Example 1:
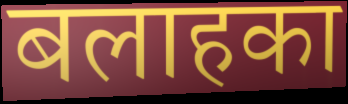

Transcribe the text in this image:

बलाहका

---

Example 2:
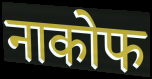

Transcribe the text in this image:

नाकोफ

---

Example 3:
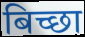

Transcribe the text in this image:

बिच्छा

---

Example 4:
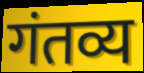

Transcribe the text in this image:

गंतव्य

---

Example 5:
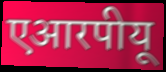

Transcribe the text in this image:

एआरपीयू